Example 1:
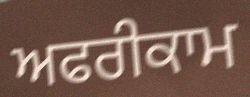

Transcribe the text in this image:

ਅਫਰੀਕਾਮ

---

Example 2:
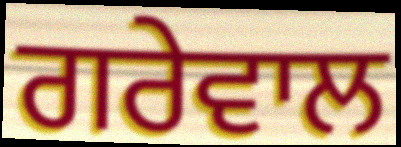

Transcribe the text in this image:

ਗਰੇਵਾਲ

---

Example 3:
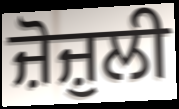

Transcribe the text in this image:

ਜ਼ੋਜ਼ੁਲੀ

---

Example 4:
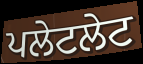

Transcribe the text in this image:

ਪਲੇਟਲੇਟ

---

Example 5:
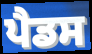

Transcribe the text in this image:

ਪੈਡਸ